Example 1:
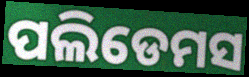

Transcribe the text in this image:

ପଲିଡେମସ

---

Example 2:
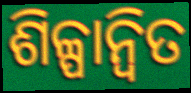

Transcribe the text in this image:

ଶିଳ୍ପାନ୍ବିତ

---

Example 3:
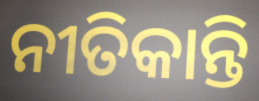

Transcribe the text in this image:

ନୀତିକାନ୍ତି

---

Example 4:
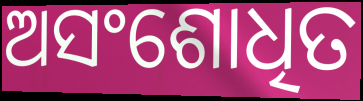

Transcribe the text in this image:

ଅସଂଶୋଧିତ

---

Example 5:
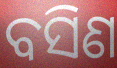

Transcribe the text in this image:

ବସିଣ